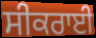
ਸੀਕਰਾਈ